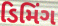
ડિમિંગ